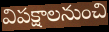
విపక్షాలనుంచి